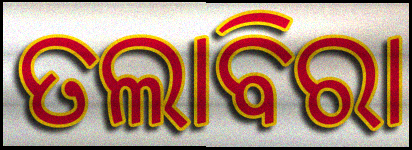
ତଲାବିରା